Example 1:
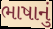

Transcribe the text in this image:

ભાષાનું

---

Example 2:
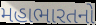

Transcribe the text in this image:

મહાભારતનો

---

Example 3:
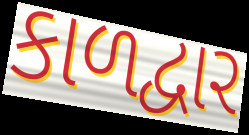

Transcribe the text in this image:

કાળદ્વાર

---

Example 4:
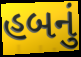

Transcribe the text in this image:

હબનું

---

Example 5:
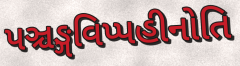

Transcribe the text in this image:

પઞ્ચઙ્ગવિપ્પહીનોતિ